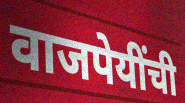
वाजपेयींची